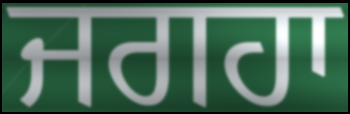
ਜਗਹਾ